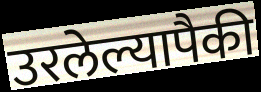
उरलेल्यापैकी